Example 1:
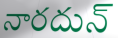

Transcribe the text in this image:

నారదున్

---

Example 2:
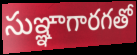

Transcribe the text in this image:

సుఞ్ఞాగారగతో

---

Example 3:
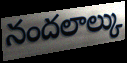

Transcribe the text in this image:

నందలాల్కు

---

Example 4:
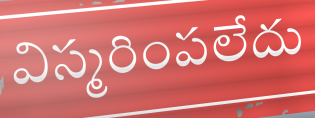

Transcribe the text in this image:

విస్మరింపలేదు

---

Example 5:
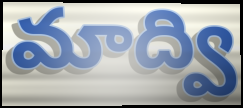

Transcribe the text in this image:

మాద్వి